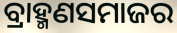
ବ୍ରାହ୍ମଣସମାଜର